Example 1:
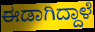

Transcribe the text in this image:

ಈಡಾಗಿದ್ದಾಳೆ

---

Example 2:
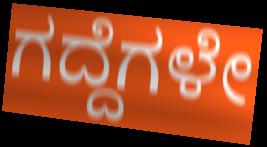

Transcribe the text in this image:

ಗದ್ದೆಗಳೇ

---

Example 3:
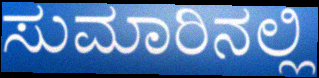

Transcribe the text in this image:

ಸುಮಾರಿನಲ್ಲಿ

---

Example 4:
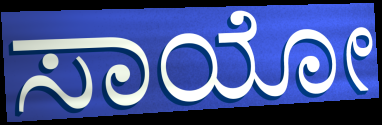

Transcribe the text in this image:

ಸಾಯೋ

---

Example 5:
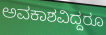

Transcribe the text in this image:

ಅವಕಾಶವಿದ್ದರೂ